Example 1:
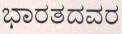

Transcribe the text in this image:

ಭಾರತದವರ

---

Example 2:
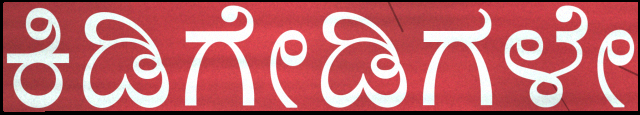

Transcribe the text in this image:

ಕಿಡಿಗೇಡಿಗಳೇ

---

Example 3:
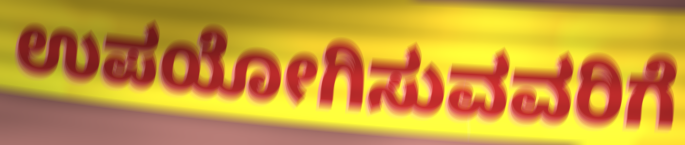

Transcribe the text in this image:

ಉಪಯೋಗಿಸುವವರಿಗೆ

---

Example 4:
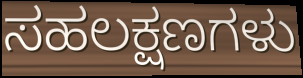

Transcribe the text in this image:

ಸಹಲಕ್ಷಣಗಳು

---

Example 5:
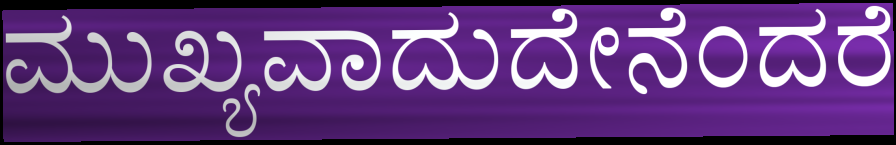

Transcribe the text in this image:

ಮುಖ್ಯವಾದುದೇನೆಂದರೆ